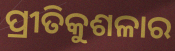
ପ୍ରୀତିକୁଶଳାର